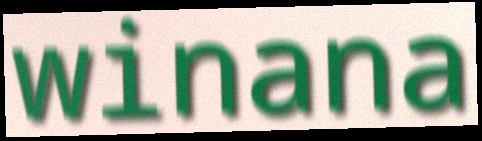
winana